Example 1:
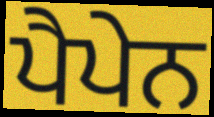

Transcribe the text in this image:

ਪੈਪੇਨ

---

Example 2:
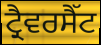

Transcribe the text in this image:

ਟ੍ਰੈਵਰਸੈੱਟ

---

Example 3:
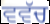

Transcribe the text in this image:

ਵਵੱਚ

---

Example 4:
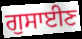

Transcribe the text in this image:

ਗੁਸਾਈਣ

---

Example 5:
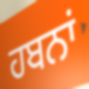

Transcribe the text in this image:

ਹਬਨਾਂ